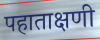
पहाताक्षणी